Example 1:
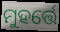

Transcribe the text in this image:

ମୁହର୍ତ୍ତେ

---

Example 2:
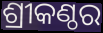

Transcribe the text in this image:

ଶ୍ରୀକଣ୍ଠର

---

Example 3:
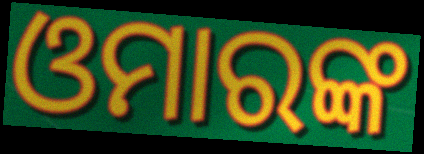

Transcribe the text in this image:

ଓମାରଙ୍କ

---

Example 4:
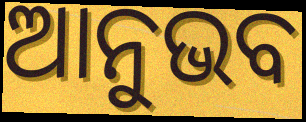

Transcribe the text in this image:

ଆନୁଭବ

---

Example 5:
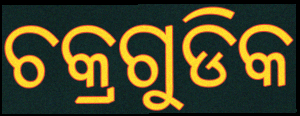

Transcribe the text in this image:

ଚକ୍ରଗୁଡିକ